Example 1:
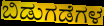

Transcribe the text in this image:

ಬಿಡುಗಡೆಗಳ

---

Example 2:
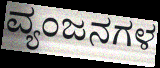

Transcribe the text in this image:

ವ್ಯಂಜನಗಳ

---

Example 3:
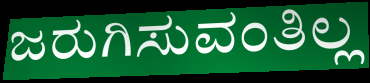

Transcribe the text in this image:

ಜರುಗಿಸುವಂತಿಲ್ಲ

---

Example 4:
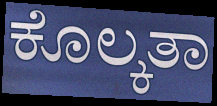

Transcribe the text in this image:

ಕೊಲ್ಕತಾ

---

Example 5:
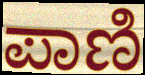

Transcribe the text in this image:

ಪಾಣಿ